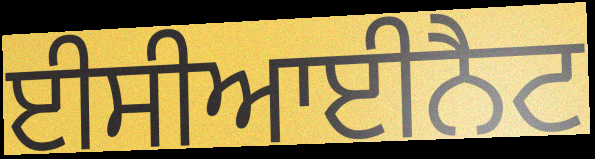
ਈਸੀਆਈਨੈਟ